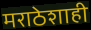
मराठेशाही